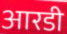
आरडी